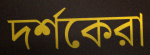
দর্শকেরা